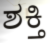
ಶಕ್ತಿ